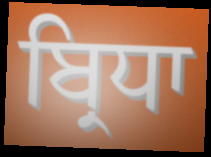
ਬ੍ਰਿਧਾ